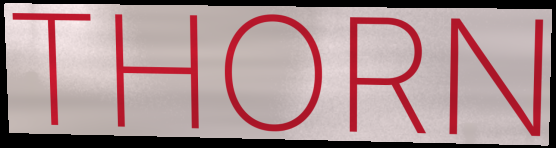
THORN